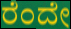
ರೆಂದೇ